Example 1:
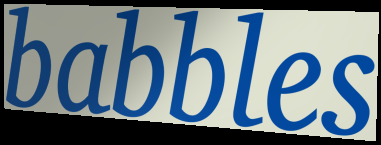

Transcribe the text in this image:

babbles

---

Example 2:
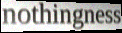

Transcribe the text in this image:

nothingness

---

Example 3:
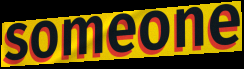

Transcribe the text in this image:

someone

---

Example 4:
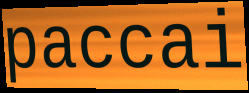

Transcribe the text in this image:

paccai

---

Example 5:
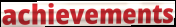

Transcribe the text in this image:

achievements